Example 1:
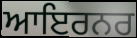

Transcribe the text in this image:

ਆਇਰਨਰ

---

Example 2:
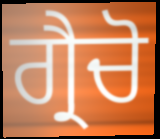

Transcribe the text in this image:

ਗ੍ਰੈਚੋ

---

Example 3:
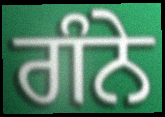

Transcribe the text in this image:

ਗੰਨੇ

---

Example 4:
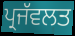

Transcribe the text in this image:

ਪ੍ਰਜੱਵਲਤ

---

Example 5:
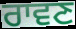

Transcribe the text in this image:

ਰਾਵਣ